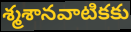
శ్మశానవాటికకు